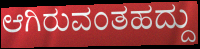
ಆಗಿರುವಂತಹದ್ದು